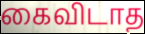
கைவிடாத